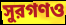
সুরগণও